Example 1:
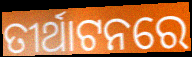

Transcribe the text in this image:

ତୀର୍ଥାଟନରେ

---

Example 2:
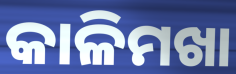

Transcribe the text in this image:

କାଳିମଖା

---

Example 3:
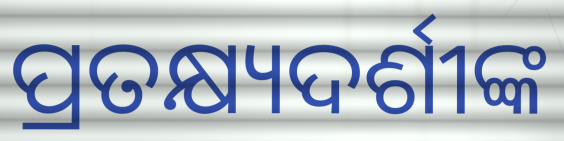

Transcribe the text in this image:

ପ୍ରତକ୍ଷ୍ୟଦର୍ଶୀଙ୍କ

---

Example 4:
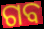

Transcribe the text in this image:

ଗବ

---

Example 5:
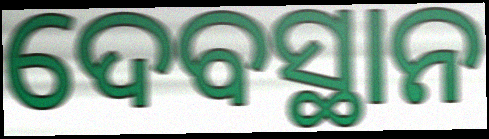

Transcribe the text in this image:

ଦେବସ୍ଥାନ